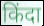
किंदा